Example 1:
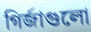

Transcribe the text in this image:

গির্জাগুলো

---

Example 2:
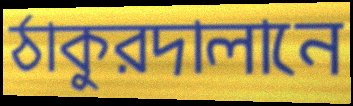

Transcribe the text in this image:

ঠাকুরদালানে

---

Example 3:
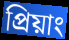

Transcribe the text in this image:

প্রিয়াং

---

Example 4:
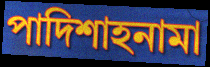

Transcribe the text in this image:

পাদিশাহনামা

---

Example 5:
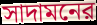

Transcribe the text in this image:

সাদামনের